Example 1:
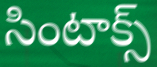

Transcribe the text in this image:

సింటాక్స్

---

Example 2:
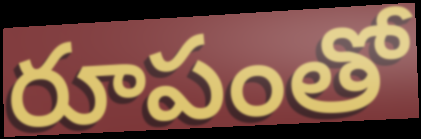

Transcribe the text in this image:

రూపంతో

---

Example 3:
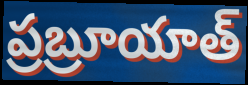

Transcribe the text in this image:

ప్రబ్రూయాత్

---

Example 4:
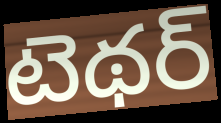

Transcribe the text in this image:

టెథర్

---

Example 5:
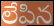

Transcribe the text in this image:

లేపిన